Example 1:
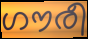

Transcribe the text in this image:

ഗൗരീ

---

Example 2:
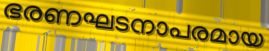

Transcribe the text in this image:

ഭരണഘടനാപരമായ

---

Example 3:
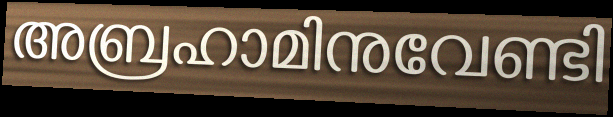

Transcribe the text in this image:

അബ്രഹാമിനുവേണ്ടി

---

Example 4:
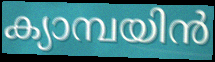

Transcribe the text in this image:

ക്യാമ്പയിൻ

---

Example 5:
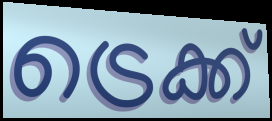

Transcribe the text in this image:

ട്രെക്ക്